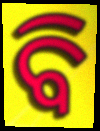
ବି